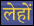
लेहों